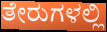
ತೇರುಗಳಲ್ಲಿ